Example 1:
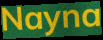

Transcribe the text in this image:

Nayna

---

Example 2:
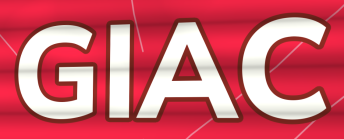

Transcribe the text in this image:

GIAC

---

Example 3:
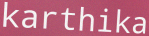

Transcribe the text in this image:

karthika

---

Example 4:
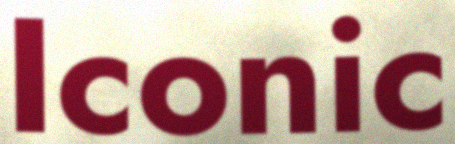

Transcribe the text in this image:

Iconic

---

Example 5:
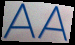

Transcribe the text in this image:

AA